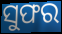
ସୁଫର